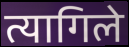
त्यागिले